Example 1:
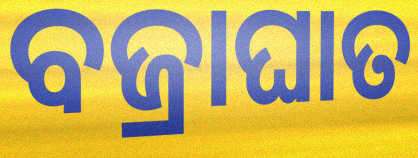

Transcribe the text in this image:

ବଜ୍ରାଘାତ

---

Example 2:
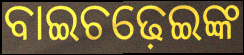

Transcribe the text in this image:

ବାଇଚଢ଼େଇଙ୍କ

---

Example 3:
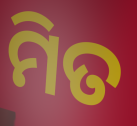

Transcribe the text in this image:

ମିତ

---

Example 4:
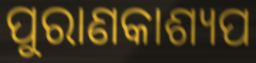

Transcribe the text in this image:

ପୁରାଣକାଶ୍ୟପ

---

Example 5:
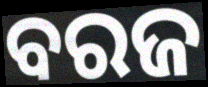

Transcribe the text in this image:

ବରଜ